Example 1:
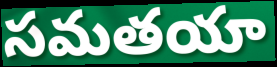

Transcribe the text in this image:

సమతయా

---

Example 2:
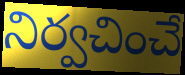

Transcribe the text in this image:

నిర్వచించే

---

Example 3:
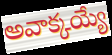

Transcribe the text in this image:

అవాక్కయ్యే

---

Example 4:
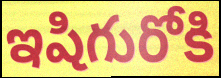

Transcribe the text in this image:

ఇషిగురోకి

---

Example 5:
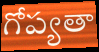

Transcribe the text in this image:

గోప్యతా